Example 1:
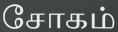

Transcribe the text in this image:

சோகம்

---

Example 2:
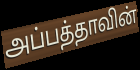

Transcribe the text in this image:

அப்பத்தாவின்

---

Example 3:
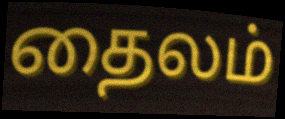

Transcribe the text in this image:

தைலம்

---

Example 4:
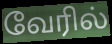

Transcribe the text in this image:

வேரில்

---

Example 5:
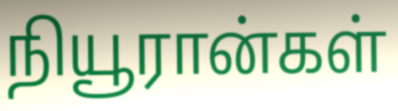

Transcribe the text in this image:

நியூரான்கள்